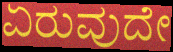
ಏರುವುದೇ